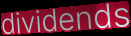
dividends